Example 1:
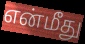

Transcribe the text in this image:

என்மீது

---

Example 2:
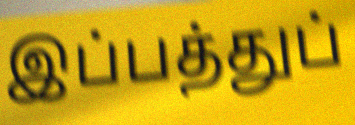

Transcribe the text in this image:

இப்பத்துப்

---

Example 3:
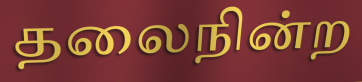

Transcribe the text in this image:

தலைநின்ற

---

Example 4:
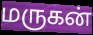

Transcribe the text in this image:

மருகன்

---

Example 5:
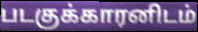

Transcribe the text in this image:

படகுக்காரனிடம்